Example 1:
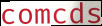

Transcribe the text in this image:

comcds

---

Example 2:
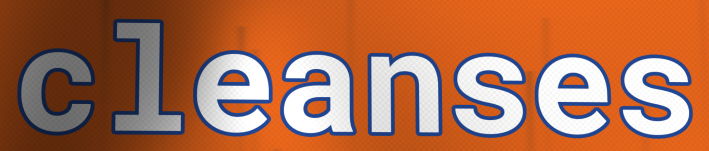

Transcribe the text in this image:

cleanses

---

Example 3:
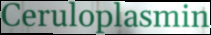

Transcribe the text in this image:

Ceruloplasmin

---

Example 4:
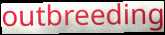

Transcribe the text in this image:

outbreeding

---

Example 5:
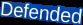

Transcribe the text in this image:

Defended